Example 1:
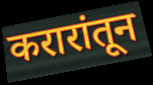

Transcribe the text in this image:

करारांतून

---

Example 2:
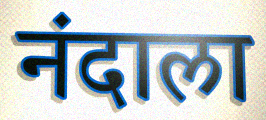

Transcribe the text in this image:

नंदाला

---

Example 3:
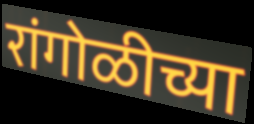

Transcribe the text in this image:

रांगोळीच्या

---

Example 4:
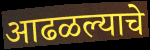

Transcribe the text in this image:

आढळल्याचे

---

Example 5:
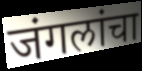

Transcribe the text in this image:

जंगलांचा